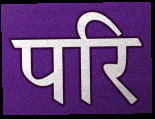
परि